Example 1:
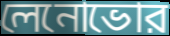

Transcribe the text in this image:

লেনোভোর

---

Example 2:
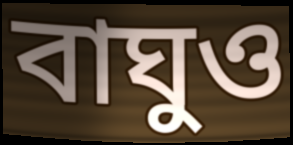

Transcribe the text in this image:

বাঘুও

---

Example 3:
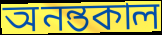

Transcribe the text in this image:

অনন্তকাল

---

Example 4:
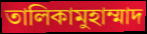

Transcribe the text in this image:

তালিকামুহাম্মাদ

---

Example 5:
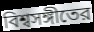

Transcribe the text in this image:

বিশ্বসঙ্গীতের